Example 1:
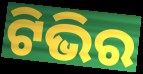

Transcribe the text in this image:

ଟିଭିର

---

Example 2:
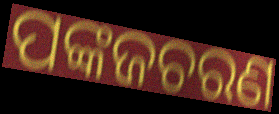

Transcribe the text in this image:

ପଙ୍କଜଚରଣ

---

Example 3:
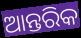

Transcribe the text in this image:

ଆନ୍ତରିକ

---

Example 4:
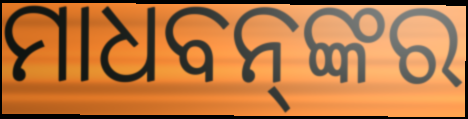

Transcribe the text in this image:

ମାଧବନ୍‌ଙ୍କର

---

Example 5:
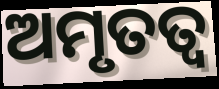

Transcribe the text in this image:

ଅମୃତତ୍ବ